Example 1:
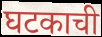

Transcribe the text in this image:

घटकाची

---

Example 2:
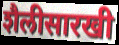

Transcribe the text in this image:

शैलीसारखी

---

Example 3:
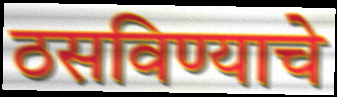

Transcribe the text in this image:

ठसविण्याचे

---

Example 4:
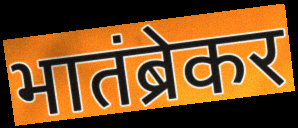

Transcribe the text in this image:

भातंब्रेकर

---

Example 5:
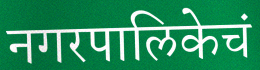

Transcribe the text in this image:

नगरपालिकेचं